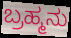
ಬ್ರಹ್ಮನು